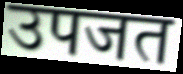
उपजत